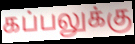
கப்பலுக்கு